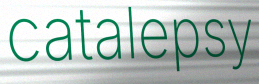
catalepsy